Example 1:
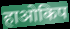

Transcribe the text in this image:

हाओकिप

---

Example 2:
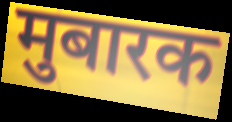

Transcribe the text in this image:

मुबारक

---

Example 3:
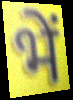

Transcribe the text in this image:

भें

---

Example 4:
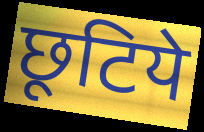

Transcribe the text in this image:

छूटिये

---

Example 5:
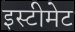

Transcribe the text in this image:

इस्टीमेट